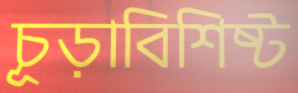
চূড়াবিশিষ্ট